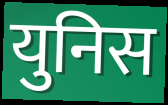
युनिस